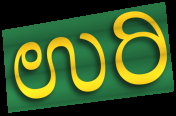
ಉರಿ